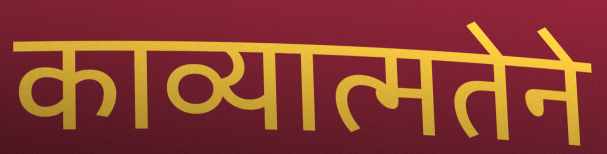
काव्यात्मतेने